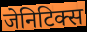
जेनिटिक्स